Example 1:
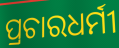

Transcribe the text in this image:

ପ୍ରଚାରଧର୍ମୀ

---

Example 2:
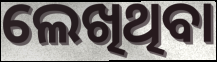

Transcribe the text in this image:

ଲେଖିଥିବା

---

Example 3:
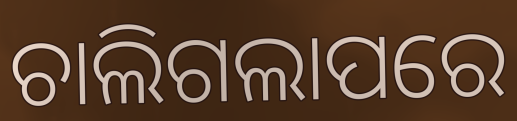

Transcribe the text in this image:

ଚାଲିଗଲାପରେ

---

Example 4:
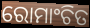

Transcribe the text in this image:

ରୋମାଂଚିତ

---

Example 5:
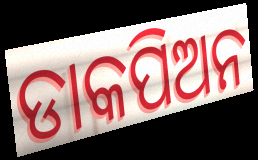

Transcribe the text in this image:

ଡାକପିଅନ